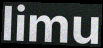
limu